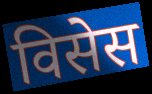
विसेस